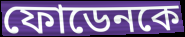
ফোডেনকে